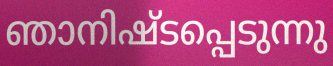
ഞാനിഷ്ടപ്പെടുന്നു